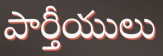
పార్తీయులు